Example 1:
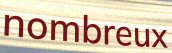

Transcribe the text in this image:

nombreux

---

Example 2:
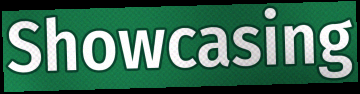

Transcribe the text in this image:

Showcasing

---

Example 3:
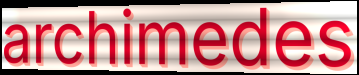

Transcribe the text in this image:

archimedes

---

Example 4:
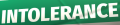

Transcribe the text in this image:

INTOLERANCE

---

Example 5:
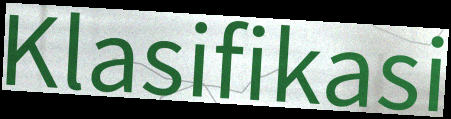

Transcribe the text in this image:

Klasifikasi